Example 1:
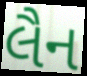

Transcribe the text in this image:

લૈન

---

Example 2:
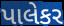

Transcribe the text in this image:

પાલેકર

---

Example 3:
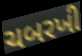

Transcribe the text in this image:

ચબરખી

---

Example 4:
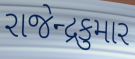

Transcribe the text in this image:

રાજેન્દ્રકુમાર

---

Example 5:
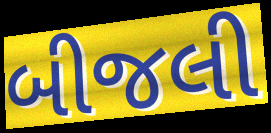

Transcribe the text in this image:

બીજલી